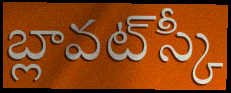
బ్లావట్‌స్కీ